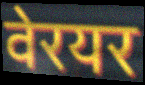
वेरयर